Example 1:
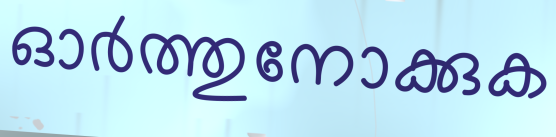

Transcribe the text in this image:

ഓർത്തുനോക്കുക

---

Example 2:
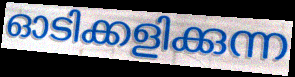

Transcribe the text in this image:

ഓടിക്കളിക്കുന്ന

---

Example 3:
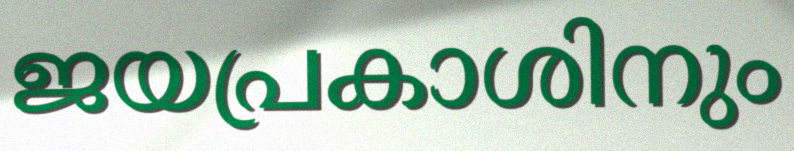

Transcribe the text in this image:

ജയപ്രകാശിനും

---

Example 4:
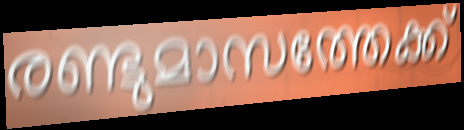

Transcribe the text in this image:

രണ്ടുമാസത്തേക്ക്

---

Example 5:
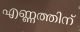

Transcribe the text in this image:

എണ്ണത്തിന്